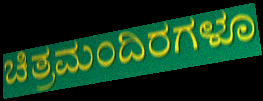
ಚಿತ್ರಮಂದಿರಗಳೂ